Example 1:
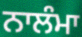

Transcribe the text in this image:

ਨਾਲੰਮਾ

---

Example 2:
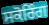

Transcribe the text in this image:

ਸਕੋਰਿੰਗ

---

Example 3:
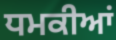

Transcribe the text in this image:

ਧਮਕੀਆਂ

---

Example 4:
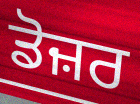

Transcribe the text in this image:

ਡੋਜ਼ਰ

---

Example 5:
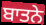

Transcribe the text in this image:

ਬਾਤਨੇ